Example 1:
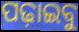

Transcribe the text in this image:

ପଢ଼ାଇବୁ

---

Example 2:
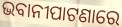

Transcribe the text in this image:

ଭବାନୀପାଟଣାରେ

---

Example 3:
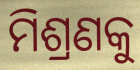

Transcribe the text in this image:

ମିଶ୍ରଣକୁ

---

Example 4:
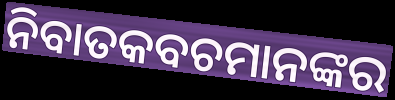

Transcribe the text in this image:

ନିବାତକବଚମାନଙ୍କର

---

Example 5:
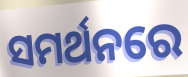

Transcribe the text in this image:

ସମର୍ଥନରେ